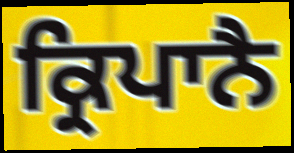
ਕ੍ਰਿਪਾਨੈ